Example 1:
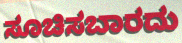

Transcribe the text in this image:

ಸೂಚಿಸಬಾರದು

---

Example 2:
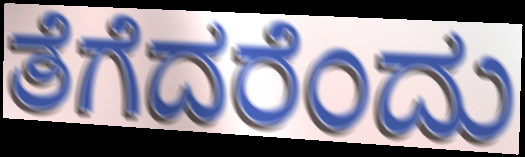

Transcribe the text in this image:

ತೆಗೆದರೆಂದು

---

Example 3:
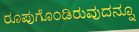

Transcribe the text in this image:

ರೂಪುಗೊಂಡಿರುವುದನ್ನೂ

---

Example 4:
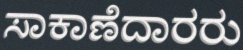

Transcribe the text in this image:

ಸಾಕಾಣೆದಾರರು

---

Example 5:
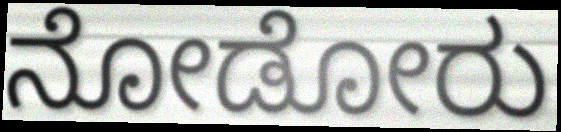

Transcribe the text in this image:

ನೋಡೋರು